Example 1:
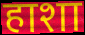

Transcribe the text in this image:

हाशा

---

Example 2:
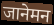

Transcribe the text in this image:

जानेमन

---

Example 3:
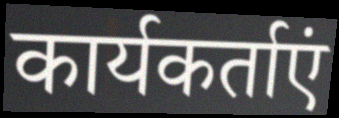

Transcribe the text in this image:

कार्यकर्ताएं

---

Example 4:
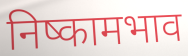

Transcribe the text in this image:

निष्कामभाव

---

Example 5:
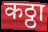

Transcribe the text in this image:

कठ्ठा